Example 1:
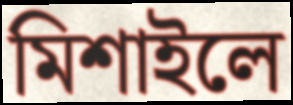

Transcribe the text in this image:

মিশাইলে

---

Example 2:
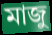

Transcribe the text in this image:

মাজু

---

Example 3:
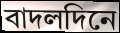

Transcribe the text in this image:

বাদলদিনে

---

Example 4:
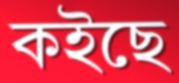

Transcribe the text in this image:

কইছে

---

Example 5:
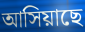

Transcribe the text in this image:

আসিয়াছে